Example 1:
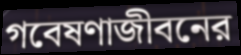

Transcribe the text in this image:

গবেষণাজীবনের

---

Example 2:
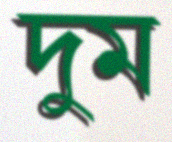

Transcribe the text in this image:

দুম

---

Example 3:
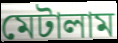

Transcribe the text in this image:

মেটালাম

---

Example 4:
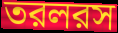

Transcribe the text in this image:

তরলরস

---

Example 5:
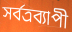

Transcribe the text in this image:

সর্বত্রব্যাপী